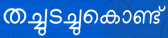
തച്ചുടച്ചുകൊണ്ട്